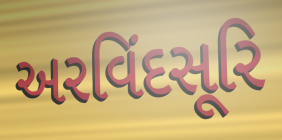
અરવિંદસૂરિ